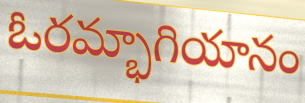
ఓరమ్భాగియానం